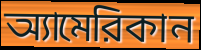
অ্যামেরিকান